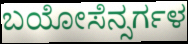
ಬಯೋಸೆನ್ಸರ್ಗಳ